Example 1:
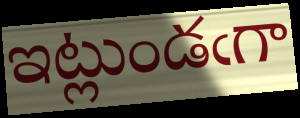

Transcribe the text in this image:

ఇట్లుండఁగా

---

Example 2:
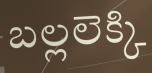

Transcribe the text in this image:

బల్లలెక్కి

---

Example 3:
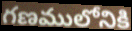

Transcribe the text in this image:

గణములోనికి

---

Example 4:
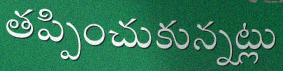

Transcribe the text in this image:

తప్పించుకున్నట్లు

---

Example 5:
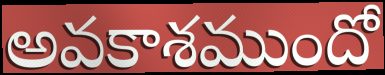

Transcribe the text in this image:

అవకాశముందో